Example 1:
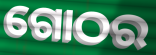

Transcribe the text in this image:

ଗୋଠର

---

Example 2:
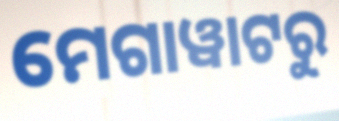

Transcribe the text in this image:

ମେଗାୱାଟରୁ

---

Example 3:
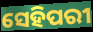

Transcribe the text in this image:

ସେହିପରୀ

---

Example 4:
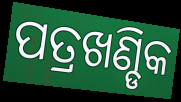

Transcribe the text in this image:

ପତ୍ରଖଣ୍ଡିକ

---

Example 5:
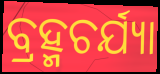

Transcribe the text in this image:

ବ୍ରହ୍ମଚର୍ଯ୍ୟା